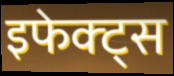
इफेक्‍ट्स